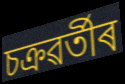
চক্ৰৱৰ্তীৰ